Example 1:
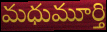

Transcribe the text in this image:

మధుమూర్తి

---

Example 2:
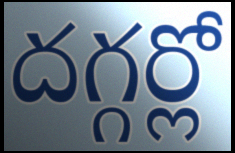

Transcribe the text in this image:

దగ్గర్లో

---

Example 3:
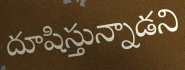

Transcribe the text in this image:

దూషిస్తున్నాడని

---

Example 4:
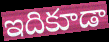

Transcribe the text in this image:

ఇదికూడా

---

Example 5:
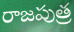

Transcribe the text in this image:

రాజపుత్ర